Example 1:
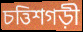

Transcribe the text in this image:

চত্তিশগড়ী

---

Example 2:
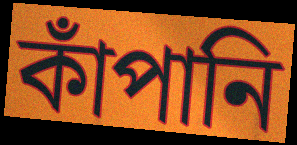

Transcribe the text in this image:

কাঁপানি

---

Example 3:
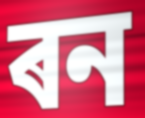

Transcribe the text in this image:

ৰন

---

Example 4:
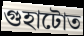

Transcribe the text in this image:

গুহাটোত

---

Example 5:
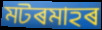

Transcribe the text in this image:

মটৰমাহৰ